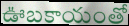
ఊబకాయంతో